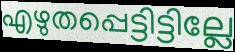
എഴുതപ്പെട്ടിട്ടില്ലേ